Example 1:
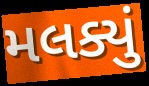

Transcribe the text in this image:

મલક્યું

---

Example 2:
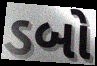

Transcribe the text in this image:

ડબો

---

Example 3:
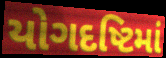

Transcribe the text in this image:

યોગદષ્ટિમાં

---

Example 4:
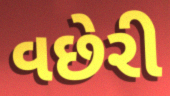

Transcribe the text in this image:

વછેરી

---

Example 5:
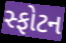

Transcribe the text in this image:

સ્ફોટન